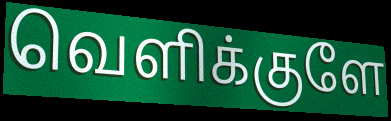
வெளிக்குளே